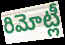
రిమోట్లీ